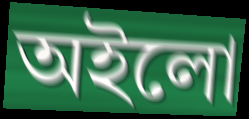
অইলো